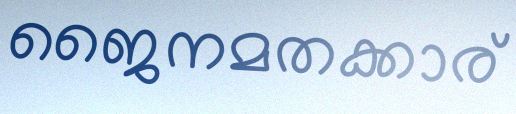
ജൈനമതക്കാര്